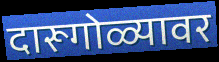
दारूगोळ्यावर